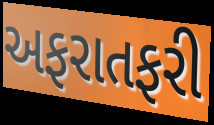
અફરાતફરી